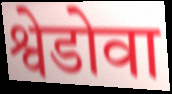
श्वेडोवा